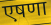
एषणा